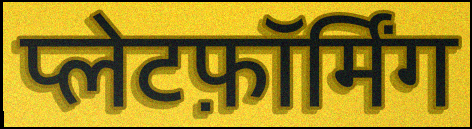
प्लेटफ़ॉर्मिंग